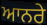
ਆਨਰੇ